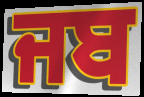
ਜਬ